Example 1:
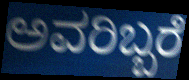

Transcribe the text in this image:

ಅವರಿಬ್ಬರೆ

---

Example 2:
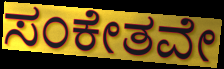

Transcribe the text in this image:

ಸಂಕೇತವೇ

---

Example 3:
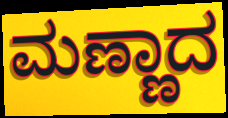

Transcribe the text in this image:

ಮಣ್ಣಾದ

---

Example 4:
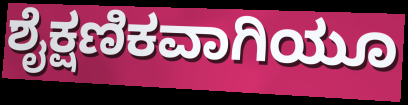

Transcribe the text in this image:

ಶೈಕ್ಷಣಿಕವಾಗಿಯೂ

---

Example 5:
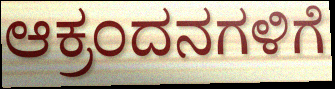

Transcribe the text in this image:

ಆಕ್ರಂದನಗಳಿಗೆ